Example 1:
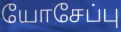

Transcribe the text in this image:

யோசேப்பு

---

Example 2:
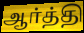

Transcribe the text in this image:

ஆர்த்தி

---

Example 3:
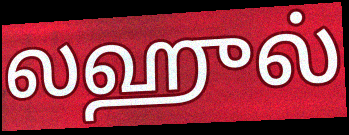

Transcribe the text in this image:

லஹுல்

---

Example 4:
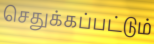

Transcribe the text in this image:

செதுக்கப்பட்டும்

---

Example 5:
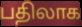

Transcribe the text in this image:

பதிலாக